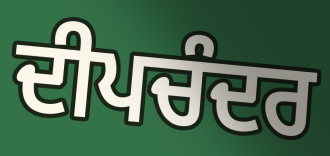
ਦੀਪਚੰਦਰ